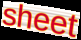
sheet